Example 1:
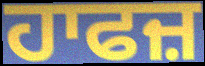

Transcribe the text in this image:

ਹਾਫਜ਼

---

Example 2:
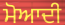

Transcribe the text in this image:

ਮੋਆਦੀ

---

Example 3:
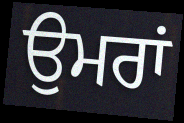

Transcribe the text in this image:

ਉਮਰਾਂ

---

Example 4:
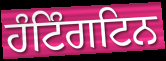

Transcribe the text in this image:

ਹੰਟਿੰਗਟਿਨ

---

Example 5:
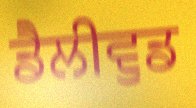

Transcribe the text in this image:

ਡੈਲੀਵੁਡ